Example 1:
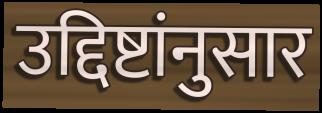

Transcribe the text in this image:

उद्दिष्टांनुसार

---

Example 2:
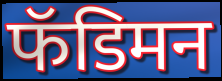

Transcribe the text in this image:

फॅडिमन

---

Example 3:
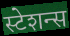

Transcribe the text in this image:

स्टेशन्स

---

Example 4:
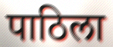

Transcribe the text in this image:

पाठिला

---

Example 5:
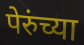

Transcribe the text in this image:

पेरुंच्या